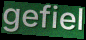
gefiel